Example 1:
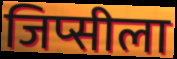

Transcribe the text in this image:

जिप्सीला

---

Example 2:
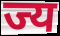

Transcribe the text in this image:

ज्य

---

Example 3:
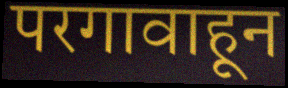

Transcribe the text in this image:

परगावाहून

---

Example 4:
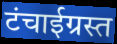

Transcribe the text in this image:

टंचाईग्रस्त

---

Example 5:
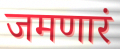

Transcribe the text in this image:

जमणारं